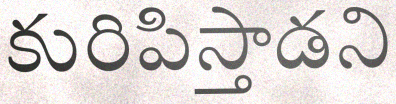
కురిపిస్తాడని